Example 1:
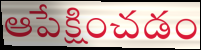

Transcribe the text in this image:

ఆపేక్షించడం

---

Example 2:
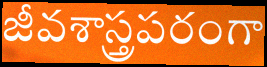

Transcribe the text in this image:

జీవశాస్త్రపరంగా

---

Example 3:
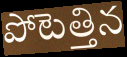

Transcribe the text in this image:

పోటెత్తిన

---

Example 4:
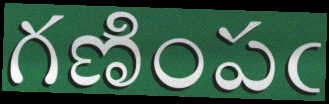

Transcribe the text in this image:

గణింపఁ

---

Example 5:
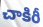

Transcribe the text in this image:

చాకిరీ